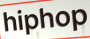
hiphop